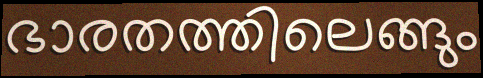
ഭാരതത്തിലെങ്ങും